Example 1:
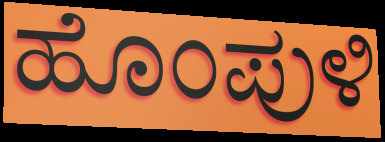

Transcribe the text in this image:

ಹೊಂಪುಳಿ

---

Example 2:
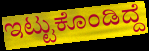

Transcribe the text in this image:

ಇಟ್ಟುಕೊಂಡಿದ್ದೆ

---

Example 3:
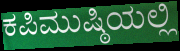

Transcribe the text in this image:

ಕಪಿಮುಷ್ಠಿಯಲ್ಲಿ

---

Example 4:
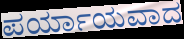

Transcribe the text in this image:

ಪರ್ಯಾಯವಾದ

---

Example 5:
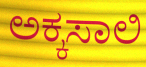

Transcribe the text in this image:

ಅಕ್ಕಸಾಲಿ